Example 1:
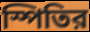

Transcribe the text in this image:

স্পিতির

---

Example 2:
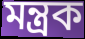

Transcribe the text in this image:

মন্ত্রক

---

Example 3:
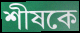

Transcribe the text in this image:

শীষকে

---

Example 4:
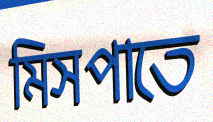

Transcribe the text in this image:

মিসপাতে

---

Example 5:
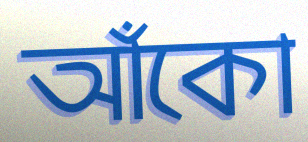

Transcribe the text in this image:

আঁকো